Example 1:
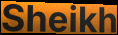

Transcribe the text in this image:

Sheikh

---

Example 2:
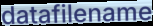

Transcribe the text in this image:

datafilename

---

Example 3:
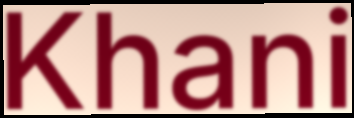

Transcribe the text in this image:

Khani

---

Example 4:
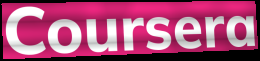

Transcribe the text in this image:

Coursera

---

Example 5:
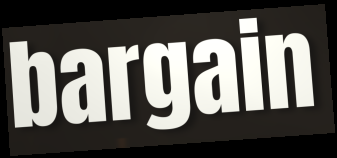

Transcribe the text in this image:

bargain